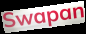
Swapan